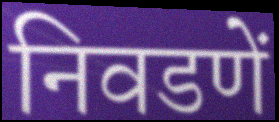
निवडणें